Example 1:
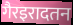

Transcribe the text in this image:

गैरइरादतन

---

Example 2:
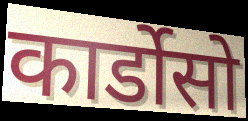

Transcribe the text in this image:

कार्डोसो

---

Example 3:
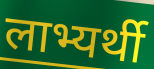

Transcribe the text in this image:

लाभ्यर्थी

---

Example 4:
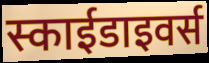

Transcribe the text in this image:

स्काईडाइवर्स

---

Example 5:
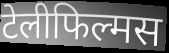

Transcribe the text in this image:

टेलीफिल्मस